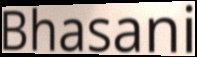
Bhasani